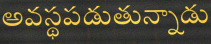
అవస్థపడుతున్నాడు